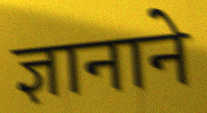
ज्ञानाने